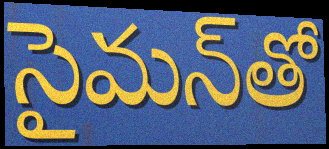
సైమన్‌తో